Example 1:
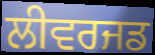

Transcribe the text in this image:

ਲੀਵਰਜਡ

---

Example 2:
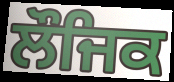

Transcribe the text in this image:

ਲੌਜਿਕ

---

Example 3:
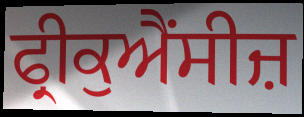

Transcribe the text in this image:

ਫ੍ਰੀਕੁਐਂਸੀਜ਼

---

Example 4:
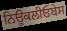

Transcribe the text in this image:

ਨਿਊਕਲੀਓਬੇਸ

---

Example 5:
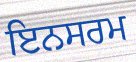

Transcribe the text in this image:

ਇਨਸਰਮ